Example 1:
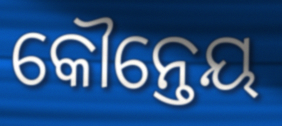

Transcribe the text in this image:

କୌନ୍ତେୟ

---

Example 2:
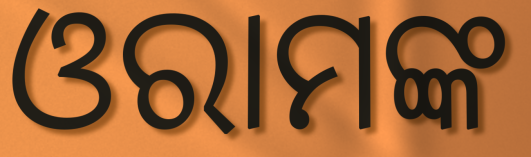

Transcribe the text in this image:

ଓରାମଙ୍କ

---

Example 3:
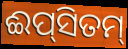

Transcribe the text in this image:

ଈପ୍‌ସିତମ୍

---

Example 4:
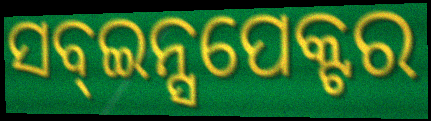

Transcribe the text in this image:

ସବ୍ଇନ୍ସପେକ୍ଟର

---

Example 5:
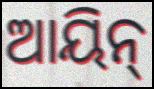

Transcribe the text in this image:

ଆୟିନ୍